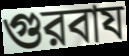
গুরবায